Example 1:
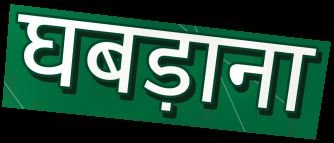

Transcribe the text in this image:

घबड़ाना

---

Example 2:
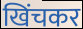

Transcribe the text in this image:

खिंचकर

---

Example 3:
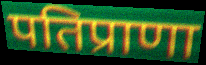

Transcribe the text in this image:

पतिप्राणा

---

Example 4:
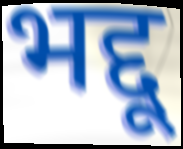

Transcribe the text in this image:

भद्दू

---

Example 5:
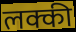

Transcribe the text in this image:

लक्की